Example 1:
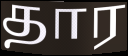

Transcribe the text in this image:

தார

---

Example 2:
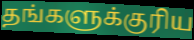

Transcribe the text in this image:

தங்களுக்குரிய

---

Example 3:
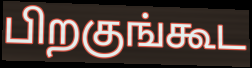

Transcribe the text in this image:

பிறகுங்கூட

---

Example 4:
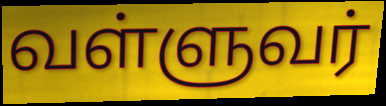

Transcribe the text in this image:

வள்ளுவர்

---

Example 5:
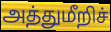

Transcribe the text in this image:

அத்துமீறிச்